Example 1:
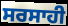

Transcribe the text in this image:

ਸਰਸਾਹੀ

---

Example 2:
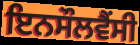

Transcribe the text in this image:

ਇਨਸੌਲਵੈਂਸੀ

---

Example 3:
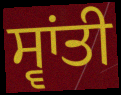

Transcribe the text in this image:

ਸ੍ਵਾਂਤੀ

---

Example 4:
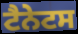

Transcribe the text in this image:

ਟੈਨੇਟਸ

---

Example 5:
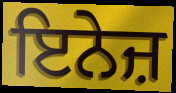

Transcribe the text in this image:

ਇਨੇਜ਼